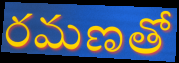
రమణతో